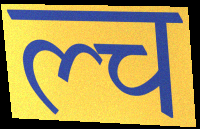
ल्च